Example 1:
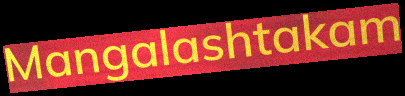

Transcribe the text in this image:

Mangalashtakam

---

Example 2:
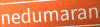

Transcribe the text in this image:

nedumaran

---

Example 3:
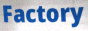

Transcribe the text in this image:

Factory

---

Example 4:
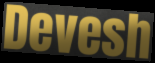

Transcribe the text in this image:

Devesh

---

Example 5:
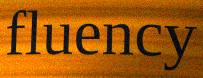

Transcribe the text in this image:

fluency